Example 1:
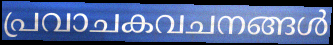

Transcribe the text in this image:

പ്രവാചകവചനങ്ങൾ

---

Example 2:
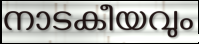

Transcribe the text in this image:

നാടകീയവും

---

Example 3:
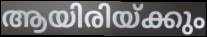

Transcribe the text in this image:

ആയിരിയ്ക്കും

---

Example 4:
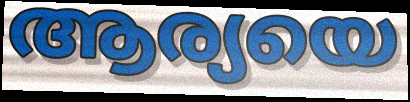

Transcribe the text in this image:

ആര്യയെ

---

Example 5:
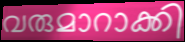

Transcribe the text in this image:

വരുമാറാക്കി